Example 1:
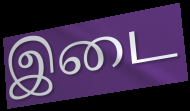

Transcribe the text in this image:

இடை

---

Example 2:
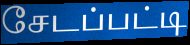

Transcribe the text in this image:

சேடப்பட்டி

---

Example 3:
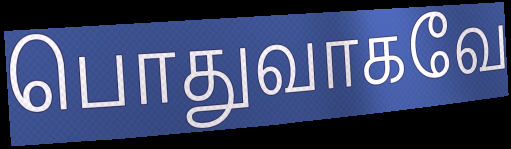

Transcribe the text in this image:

பொதுவாகவே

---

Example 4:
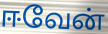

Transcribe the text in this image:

ஈவேன்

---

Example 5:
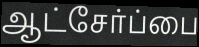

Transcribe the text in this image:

ஆட்சேர்ப்பை